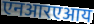
एनआरएआय